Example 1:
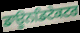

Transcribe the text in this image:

ਡਾਊਨਡਿਟੇਕਟਰ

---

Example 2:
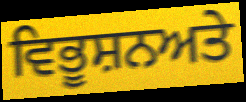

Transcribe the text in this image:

ਵਿਭੂਸ਼ਨਅਤੇ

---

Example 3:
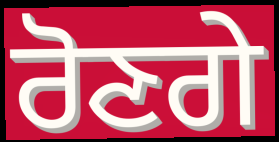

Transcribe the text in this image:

ਰੋਣਗੇ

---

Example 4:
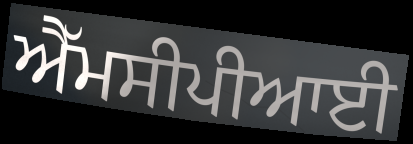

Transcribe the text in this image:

ਐੱਮਸੀਪੀਆਈ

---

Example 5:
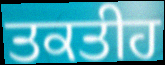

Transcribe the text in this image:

ਤਕਤੀਹ